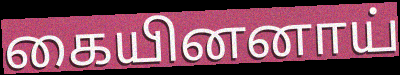
கையினனாய்